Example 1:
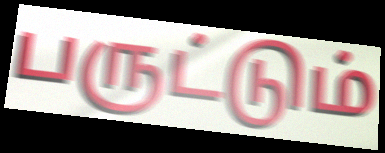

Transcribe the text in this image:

பருட்டும்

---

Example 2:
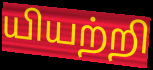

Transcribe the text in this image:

யியற்றி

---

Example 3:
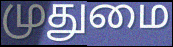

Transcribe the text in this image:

முதுமை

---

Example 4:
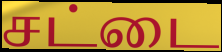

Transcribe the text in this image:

சட்டை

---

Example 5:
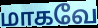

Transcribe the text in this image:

மாகவே